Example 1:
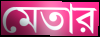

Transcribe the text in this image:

মেতার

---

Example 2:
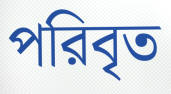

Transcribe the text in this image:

পরিবৃত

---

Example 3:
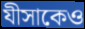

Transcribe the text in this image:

যীসাকেও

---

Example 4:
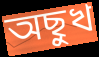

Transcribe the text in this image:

অছুখ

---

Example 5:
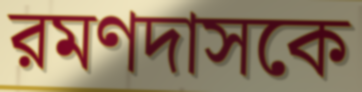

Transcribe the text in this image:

রমণদাসকে